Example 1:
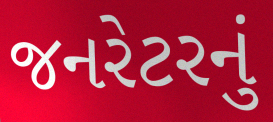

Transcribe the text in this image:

જનરેટરનું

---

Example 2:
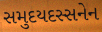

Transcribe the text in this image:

સમુદયદસ્સનેન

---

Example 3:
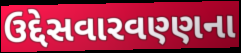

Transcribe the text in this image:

ઉદ્દેસવારવણ્ણના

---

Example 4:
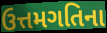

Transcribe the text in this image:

ઉત્તમગતિના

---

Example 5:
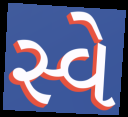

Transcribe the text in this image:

સ્વે